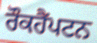
ਰੌਕਹੈਂਪਟਨ